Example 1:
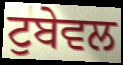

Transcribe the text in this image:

ਟੁਬੇਵਲ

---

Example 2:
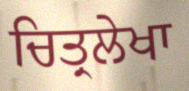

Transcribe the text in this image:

ਚਿਤ੍ਰਲੇਖਾ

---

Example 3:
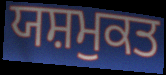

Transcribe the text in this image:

ਯਸ਼ਮੁਕਤ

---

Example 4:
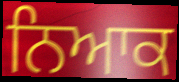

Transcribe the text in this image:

ਨਿਆਕ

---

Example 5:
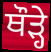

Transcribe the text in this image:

ਥੌੜ੍ਹੇ